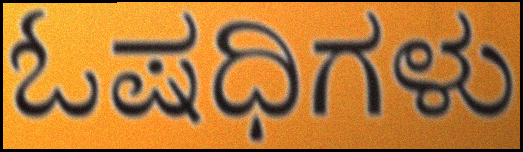
ಓಷಧಿಗಳು